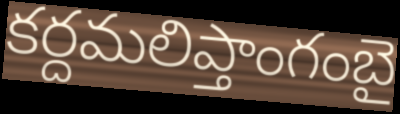
కర్దమలిప్తాంగంబై